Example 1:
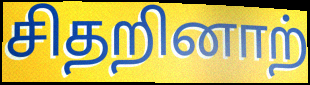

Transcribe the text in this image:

சிதறினாற்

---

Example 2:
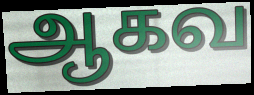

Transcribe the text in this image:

ஆகவ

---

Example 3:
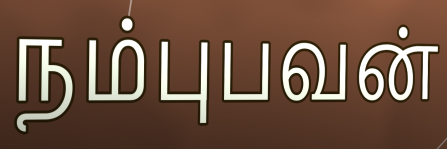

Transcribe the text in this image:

நம்புபவன்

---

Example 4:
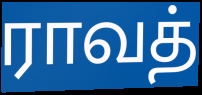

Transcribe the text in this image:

ராவத்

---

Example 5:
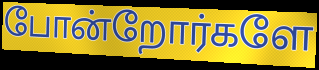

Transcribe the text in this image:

போன்றோர்களே